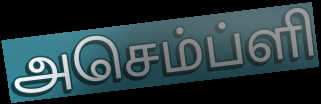
அசெம்ப்ளி